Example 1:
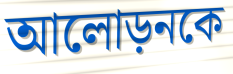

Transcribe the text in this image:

আলোড়নকে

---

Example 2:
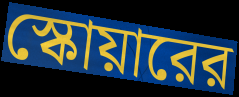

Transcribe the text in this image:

স্কোয়ারের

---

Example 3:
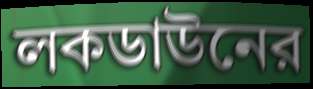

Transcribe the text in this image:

লকডাউনের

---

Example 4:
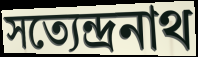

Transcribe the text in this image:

সত্যেন্দ্রনাথ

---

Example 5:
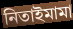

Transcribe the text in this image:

নিতাইমামা